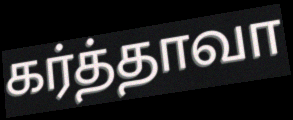
கர்த்தாவா